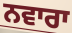
ਨਵਾਰਾ